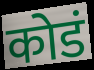
कोडं